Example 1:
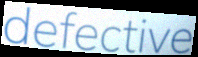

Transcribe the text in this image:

defective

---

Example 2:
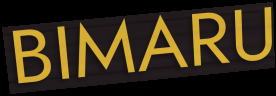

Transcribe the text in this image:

BIMARU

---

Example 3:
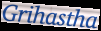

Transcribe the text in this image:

Grihastha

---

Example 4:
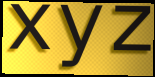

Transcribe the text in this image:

xyz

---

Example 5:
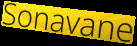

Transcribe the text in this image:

Sonavane